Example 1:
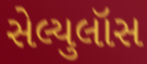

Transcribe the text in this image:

સેલ્યુલૉસ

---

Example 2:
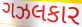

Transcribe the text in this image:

ગઝલકાર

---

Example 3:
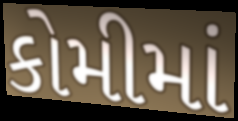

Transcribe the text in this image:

કોમીમાં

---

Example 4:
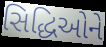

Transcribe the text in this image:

સિદ્ધિઓને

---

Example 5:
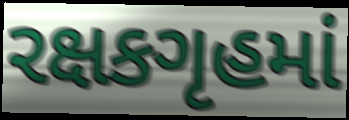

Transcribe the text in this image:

રક્ષકગૃહમાં